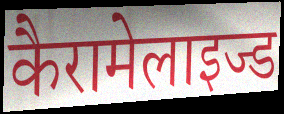
कैरामेलाइज्ड